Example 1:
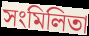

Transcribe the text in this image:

সংমিলিতা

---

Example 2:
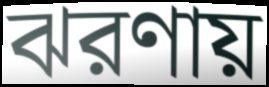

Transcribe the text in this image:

ঝরণায়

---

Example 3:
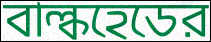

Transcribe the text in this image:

বাল্কহেডের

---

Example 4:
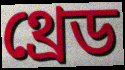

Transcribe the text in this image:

থ্রেড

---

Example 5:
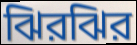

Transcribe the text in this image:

ঝিরঝির